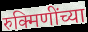
रुक्मिणींच्या